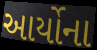
આર્યોના